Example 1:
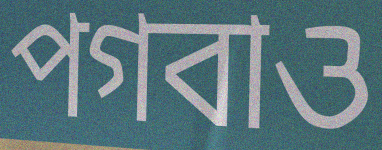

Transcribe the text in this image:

পগবাও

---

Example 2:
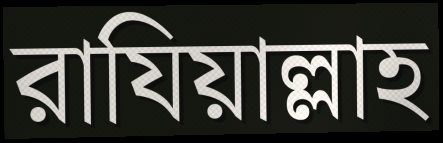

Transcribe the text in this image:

রাযিয়াল্লাহ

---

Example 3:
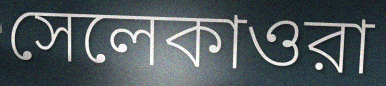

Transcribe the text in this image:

সেলেকাওরা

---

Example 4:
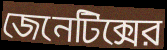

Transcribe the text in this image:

জেনেটিক্সের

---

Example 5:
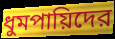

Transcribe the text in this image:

ধুমপায়িদের